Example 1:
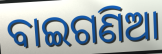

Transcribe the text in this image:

ବାଇଗଣିଆ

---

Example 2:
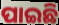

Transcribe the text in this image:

ପାଇଛି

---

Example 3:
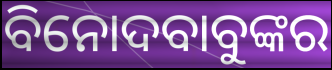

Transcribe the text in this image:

ବିନୋଦବାବୁଙ୍କର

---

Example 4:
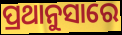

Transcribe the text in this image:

ପ୍ରଥାନୁସାରେ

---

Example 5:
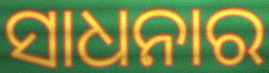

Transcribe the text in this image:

ସାଧନାର